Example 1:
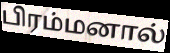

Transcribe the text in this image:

பிரம்மனால்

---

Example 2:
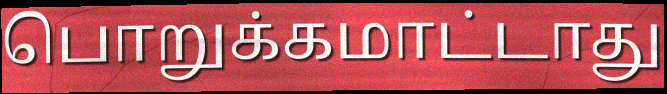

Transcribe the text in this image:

பொறுக்கமாட்டாது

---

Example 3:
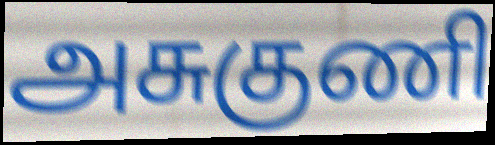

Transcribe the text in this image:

அசுகுணி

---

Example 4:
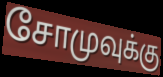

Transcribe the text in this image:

சோமுவுக்கு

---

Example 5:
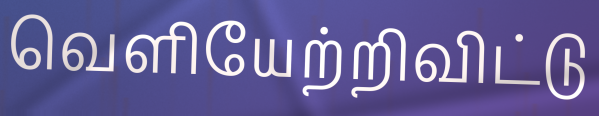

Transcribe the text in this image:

வெளியேற்றிவிட்டு